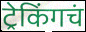
ट्रेकिंगचं